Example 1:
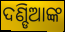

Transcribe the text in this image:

ଦଣ୍ଡିଆଙ୍କ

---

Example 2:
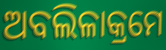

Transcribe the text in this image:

ଅବଲିଳାକ୍ରମେ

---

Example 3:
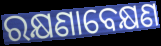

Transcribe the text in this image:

ରକ୍ଷଣାବେକ୍ଷଣ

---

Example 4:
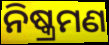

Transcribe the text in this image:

ନିଷ୍କ୍ରମଣ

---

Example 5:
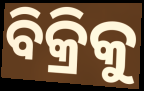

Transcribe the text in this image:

ବିକ୍ରିକୁ